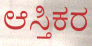
ಆಸ್ತಿಕರ